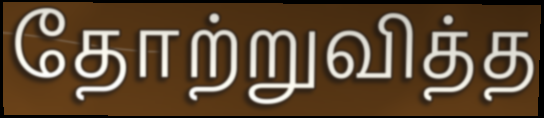
தோற்றுவித்த